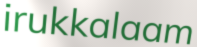
irukkalaam